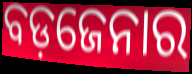
ବଡ଼ଜେନାର